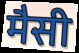
मैसी